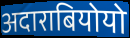
अदाराबियोयो